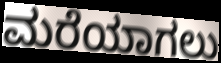
ಮರೆಯಾಗಲು